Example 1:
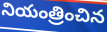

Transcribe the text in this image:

నియంత్రించిన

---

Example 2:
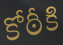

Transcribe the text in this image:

కోఠీకి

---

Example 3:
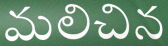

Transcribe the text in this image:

మలిచిన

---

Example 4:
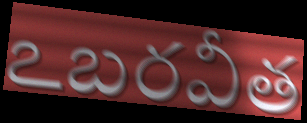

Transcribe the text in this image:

ఽబరవీత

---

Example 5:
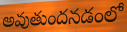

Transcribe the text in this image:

అవుతుందనడంలో